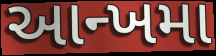
આન્ખમા